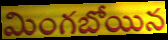
మింగబోయిన